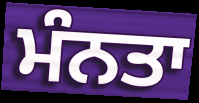
ਮੰਨਤਾ